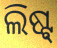
ଲିଷ୍ଟ୍